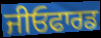
ਜੀਓਫਾਰਡ